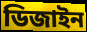
ডিজাইন